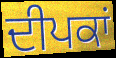
ਦੀਪਕਾਂ